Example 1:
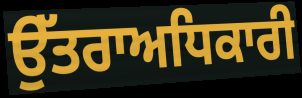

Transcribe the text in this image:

ਉੱਤਰਾਅਧਿਕਾਰੀ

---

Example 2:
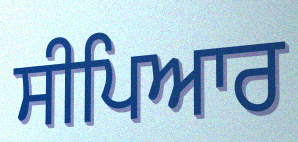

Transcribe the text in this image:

ਸੀਪਿਆਰ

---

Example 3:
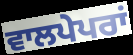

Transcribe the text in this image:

ਵਾਲਪੇਪਰਾਂ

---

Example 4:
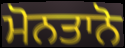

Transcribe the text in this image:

ਮੋਨਤਾਨੋ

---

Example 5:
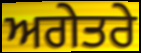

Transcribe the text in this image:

ਅਗੇਤਰੇ